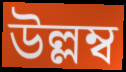
উল্লম্ব